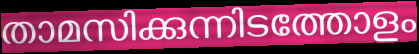
താമസിക്കുന്നിടത്തോളം